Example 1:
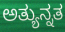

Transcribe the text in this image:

ಅತ್ಯುನ್ನತ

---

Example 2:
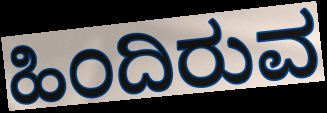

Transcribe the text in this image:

ಹಿಂದಿರುವ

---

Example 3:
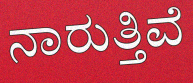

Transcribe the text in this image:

ನಾರುತ್ತಿವೆ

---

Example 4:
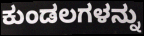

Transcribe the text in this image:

ಕುಂಡಲಗಳನ್ನು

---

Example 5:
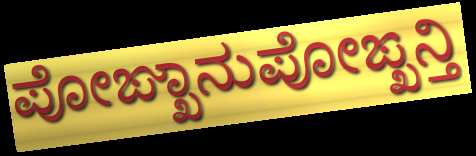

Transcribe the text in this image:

ಪೋಙ್ಖಾನುಪೋಙ್ಖನ್ತಿ